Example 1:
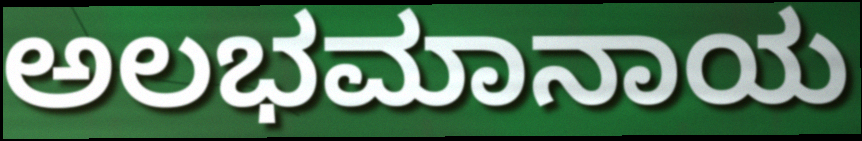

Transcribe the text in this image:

ಅಲಭಮಾನಾಯ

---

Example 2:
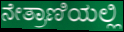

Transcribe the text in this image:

ನೇತ್ರಾಣಿಯಲ್ಲಿ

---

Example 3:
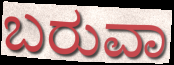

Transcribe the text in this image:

ಬರುವಾ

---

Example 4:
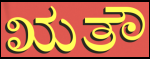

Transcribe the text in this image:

ಋತೌ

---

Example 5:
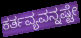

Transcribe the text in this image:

ಕರ್ತವ್ಯವನ್ನಷ್ಟೇ